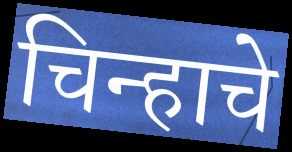
चिन्हाचे